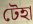
টেহা